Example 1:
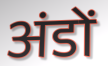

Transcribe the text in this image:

अंडों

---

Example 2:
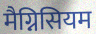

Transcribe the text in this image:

मैग्निसियम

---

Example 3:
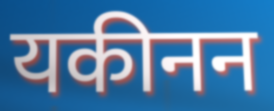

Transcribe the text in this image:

यकीनन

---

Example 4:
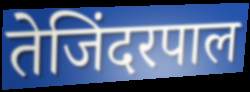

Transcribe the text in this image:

तेजिंदरपाल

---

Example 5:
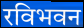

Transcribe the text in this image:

रविभवन